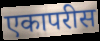
एकापरीस